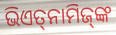
ଭିଏତ୍‌ନାମିଜ୍‌ଙ୍କ